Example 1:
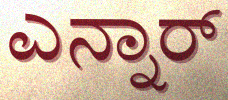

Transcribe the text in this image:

ಎನ್ನಾರ್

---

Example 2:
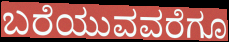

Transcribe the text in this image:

ಬರೆಯುವವರೆಗೂ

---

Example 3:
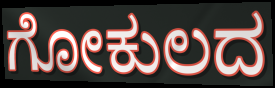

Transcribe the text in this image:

ಗೋಕುಲದ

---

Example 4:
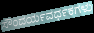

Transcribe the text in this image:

ಸೌಂದರ್ಯವರ್ಧಕಗಳು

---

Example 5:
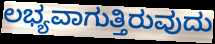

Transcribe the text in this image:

ಲಭ್ಯವಾಗುತ್ತಿರುವುದು